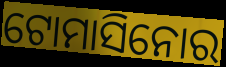
ଟୋମାସିନୋର